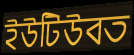
ইউটিউবত